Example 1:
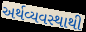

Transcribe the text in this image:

અર્થવ્યવસ્થાથી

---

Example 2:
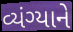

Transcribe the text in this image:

વ્યંગ્યાને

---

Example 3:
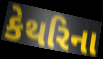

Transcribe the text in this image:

કેથરિના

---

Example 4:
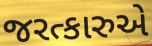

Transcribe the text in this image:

જરત્કારુએ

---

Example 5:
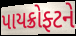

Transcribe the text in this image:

પાયક્રોફ્ટને